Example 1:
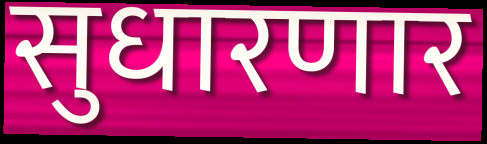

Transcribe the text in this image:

सुधारणार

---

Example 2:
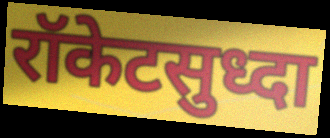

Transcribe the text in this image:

रॉकेटसुध्दा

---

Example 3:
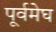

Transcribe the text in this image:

पूर्वमेघ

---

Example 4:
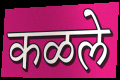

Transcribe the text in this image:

कळले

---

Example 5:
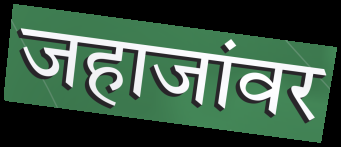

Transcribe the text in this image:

जहाजांवर